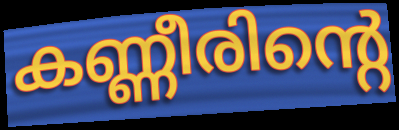
കണ്ണീരിന്റെ